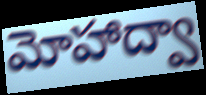
మోహాద్వా